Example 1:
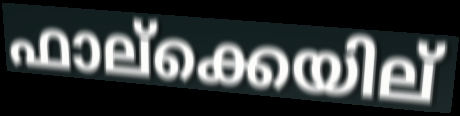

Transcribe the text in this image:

ഫാല്ക്കെയില്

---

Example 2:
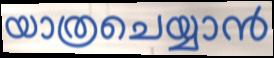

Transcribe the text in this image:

യാത്രചെയ്യാൻ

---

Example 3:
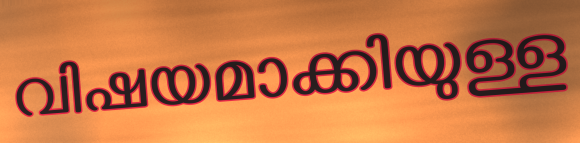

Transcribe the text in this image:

വിഷയമാക്കിയുള്ള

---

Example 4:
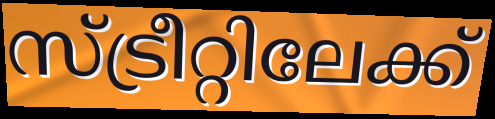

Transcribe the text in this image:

സ്ട്രീറ്റിലേക്ക്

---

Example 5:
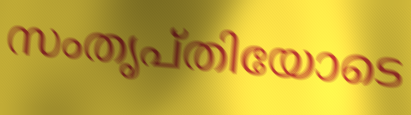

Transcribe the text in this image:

സംതൃപ്തിയോടെ